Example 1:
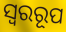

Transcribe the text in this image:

ସ୍ୱରରୂପ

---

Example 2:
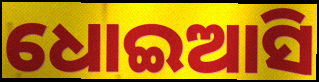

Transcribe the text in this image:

ଧୋଇଆସି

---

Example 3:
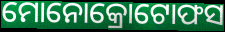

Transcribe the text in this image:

ମୋନୋକ୍ରୋଟୋଫସ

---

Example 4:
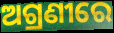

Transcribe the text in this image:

ଅଗ୍ରଣୀରେ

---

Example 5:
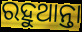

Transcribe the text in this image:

ରହୁଥାନ୍ତା